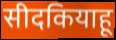
सीदकियाहू